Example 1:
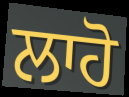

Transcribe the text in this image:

ਲਾਹੋ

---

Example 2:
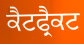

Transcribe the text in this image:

ਕੈਟਫ੍ਰੈਕਟ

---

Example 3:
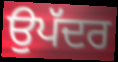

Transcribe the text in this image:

ਉਪੱਦਰ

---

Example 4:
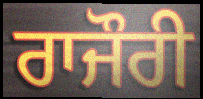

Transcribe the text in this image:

ਰਾਜੌਰੀ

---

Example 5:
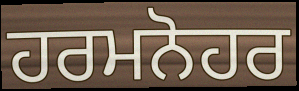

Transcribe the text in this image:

ਹਰਮਨੋਹਰ